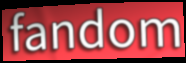
fandom